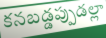
కనబడ్డప్పుడల్లా